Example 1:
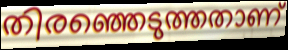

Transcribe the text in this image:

തിരഞ്ഞെടുത്തതാണ്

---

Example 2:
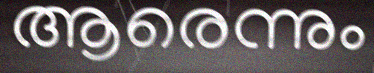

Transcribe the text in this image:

ആരെന്നും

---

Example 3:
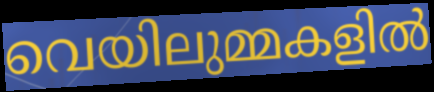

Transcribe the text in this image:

വെയിലുമ്മകളിൽ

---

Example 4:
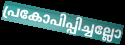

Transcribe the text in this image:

പ്രകോപിപ്പിച്ചല്ലോ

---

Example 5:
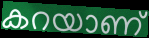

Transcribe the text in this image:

കറയാണ്